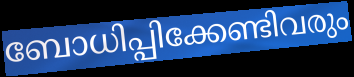
ബോധിപ്പിക്കേണ്ടിവരും